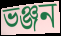
ভঞ্জন